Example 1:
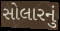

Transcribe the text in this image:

સોલારનું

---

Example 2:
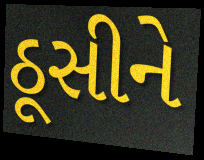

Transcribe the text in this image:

ઠૂસીને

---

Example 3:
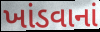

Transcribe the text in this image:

ખાંડવાનાં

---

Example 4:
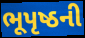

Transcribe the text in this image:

ભૂપૃષ્ઠની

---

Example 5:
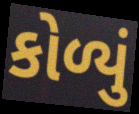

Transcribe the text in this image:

કોળ્યું